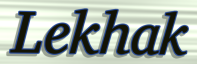
Lekhak